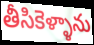
తీసికెళ్ళాను